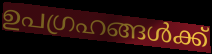
ഉപഗ്രഹങ്ങൾക്ക്